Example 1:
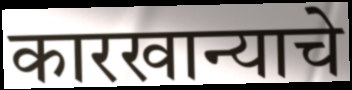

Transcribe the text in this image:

कारखान्याचे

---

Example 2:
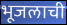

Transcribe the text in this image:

भूजलाची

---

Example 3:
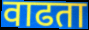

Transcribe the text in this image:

वाढता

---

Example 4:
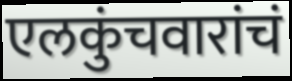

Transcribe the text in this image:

एलकुंचवारांचं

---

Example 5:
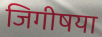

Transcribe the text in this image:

जिगीषया